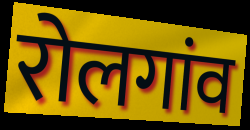
रोलगांव